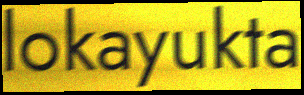
lokayukta